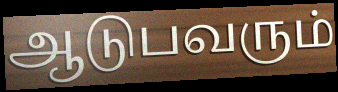
ஆடுபவரும்